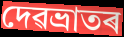
দেৱভ্ৰাতৰ